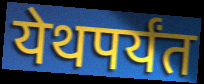
येथपर्यंत